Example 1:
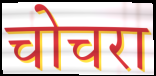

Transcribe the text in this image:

चोचरा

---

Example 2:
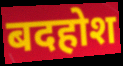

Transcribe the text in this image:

बदहोश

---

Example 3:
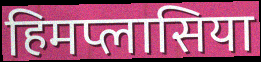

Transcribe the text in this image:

हिमप्लासिया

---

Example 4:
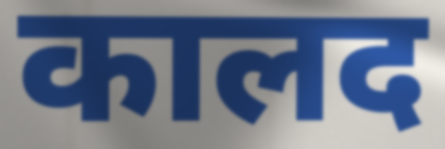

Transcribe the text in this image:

कालद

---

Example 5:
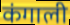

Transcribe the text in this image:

कंगाली